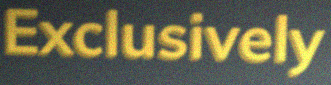
Exclusively